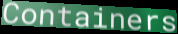
Containers